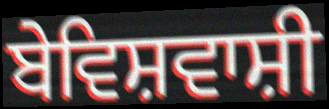
ਬੇਵਿਸ਼ਵਾਸ਼ੀ